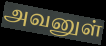
அவனுள்